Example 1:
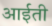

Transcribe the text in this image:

आईती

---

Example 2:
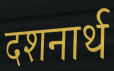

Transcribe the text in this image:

दशनार्थ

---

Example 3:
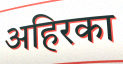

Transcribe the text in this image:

अहिरका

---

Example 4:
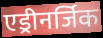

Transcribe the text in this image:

एड्रीनर्जिक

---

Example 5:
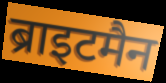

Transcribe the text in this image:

ब्राइटमैन